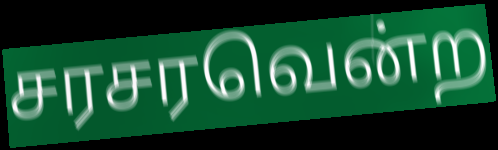
சரசரவென்ற